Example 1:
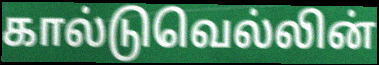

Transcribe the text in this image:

கால்டுவெல்லின்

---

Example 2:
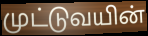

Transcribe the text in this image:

முட்டுவயின்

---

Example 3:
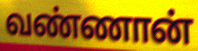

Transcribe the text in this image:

வண்ணான்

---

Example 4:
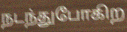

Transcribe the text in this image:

நடந்துபோகிற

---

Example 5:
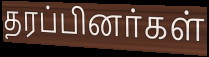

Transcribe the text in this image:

தரப்பினர்கள்